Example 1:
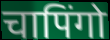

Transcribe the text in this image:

चापिंगो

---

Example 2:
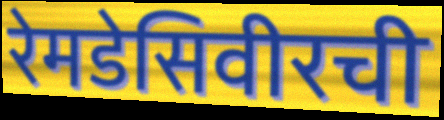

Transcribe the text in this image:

रेमडेसिवीरची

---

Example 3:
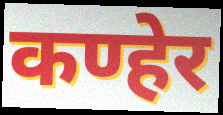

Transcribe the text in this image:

कण्हेर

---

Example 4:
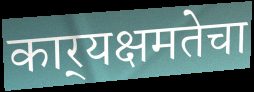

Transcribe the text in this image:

कार्यक्षमतेचा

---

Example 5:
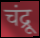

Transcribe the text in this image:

चंद्रू